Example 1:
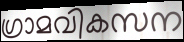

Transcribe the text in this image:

ഗ്രാമവികസന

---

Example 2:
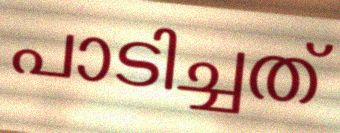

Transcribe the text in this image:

പാടിച്ചത്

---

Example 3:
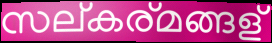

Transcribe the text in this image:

സല്കര്മങ്ങള്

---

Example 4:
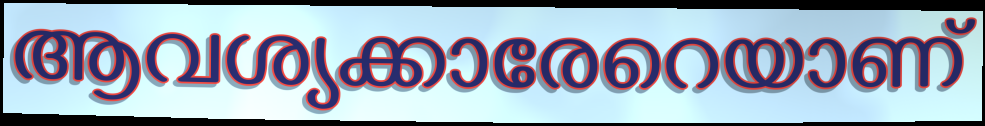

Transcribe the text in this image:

ആവശ്യക്കാരേറെയാണ്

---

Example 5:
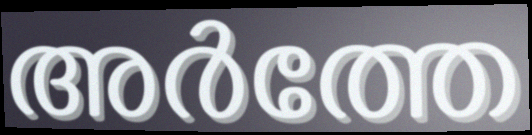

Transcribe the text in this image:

അർത്തേ